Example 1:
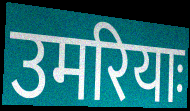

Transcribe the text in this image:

उमरियाः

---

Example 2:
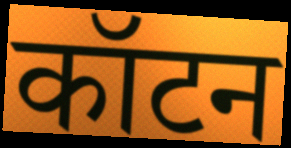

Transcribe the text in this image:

कॉटन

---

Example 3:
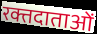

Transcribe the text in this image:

रक्तदाताओं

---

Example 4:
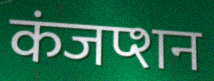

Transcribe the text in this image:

कंजप्शन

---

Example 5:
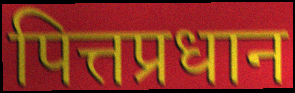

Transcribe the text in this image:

पित्तप्रधान